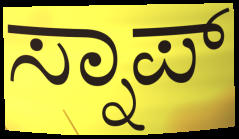
ಸ್ನಾಪ್